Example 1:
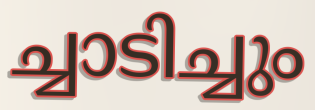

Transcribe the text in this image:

ച്ചാടിച്ചും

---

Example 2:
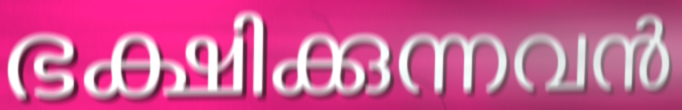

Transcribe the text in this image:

ഭക്ഷിക്കുന്നവൻ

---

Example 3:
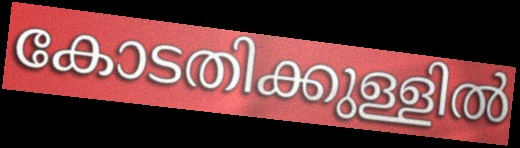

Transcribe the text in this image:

കോടതിക്കുള്ളിൽ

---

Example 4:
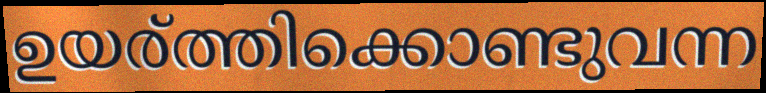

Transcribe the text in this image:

ഉയര്ത്തിക്കൊണ്ടുവന്ന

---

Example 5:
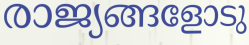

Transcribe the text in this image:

രാജ്യങ്ങളോടു